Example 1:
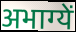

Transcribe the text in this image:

अभाग्यें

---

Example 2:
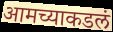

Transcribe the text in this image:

आमच्याकडलं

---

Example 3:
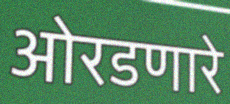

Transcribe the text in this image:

ओरडणारे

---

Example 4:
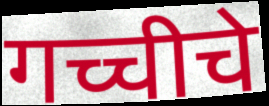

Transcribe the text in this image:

गच्चीचे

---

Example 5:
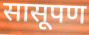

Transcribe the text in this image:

सासूपण